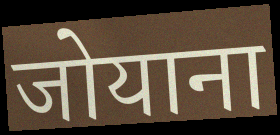
जोयाना